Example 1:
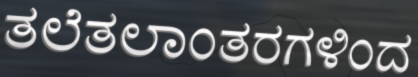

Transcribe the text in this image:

ತಲೆತಲಾಂತರಗಳಿಂದ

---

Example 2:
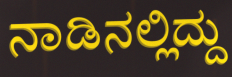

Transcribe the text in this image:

ನಾಡಿನಲ್ಲಿದ್ದು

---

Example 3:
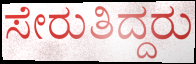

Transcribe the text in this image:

ಸೇರುತಿದ್ದರು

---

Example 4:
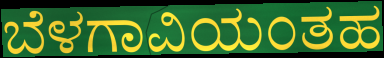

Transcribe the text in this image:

ಬೆಳಗಾವಿಯಂತಹ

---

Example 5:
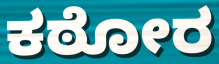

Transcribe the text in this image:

ಕಠೋರ